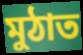
মুঠাত